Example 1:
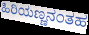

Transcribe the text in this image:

ಹಿರಿಯಣ್ಣನಂತಹ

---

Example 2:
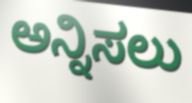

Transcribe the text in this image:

ಅನ್ನಿಸಲು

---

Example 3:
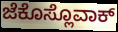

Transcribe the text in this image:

ಜೆಕೊಸ್ಲೊವಾಕ್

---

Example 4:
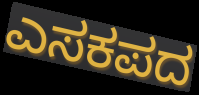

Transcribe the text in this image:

ಎಸಕಪದ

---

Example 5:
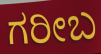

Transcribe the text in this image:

ಗರೀಬ